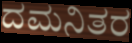
ದಮನಿತರ